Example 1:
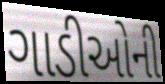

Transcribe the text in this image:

ગાડીઓની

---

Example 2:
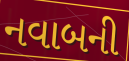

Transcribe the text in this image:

નવાબની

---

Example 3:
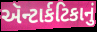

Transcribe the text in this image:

ઍન્ટાર્કટિકાનું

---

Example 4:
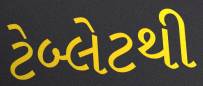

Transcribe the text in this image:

ટેબ્લેટથી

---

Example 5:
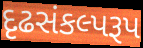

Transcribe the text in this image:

દૃઢસંકલ્પરૂપ